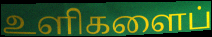
உளிகளைப்